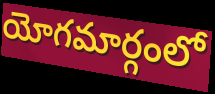
యోగమార్గంలో